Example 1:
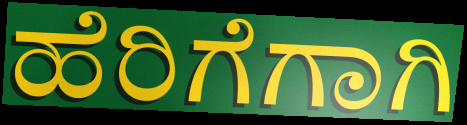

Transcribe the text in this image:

ಹೆರಿಗೆಗಾಗಿ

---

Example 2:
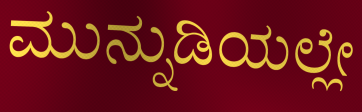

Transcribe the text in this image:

ಮುನ್ನುಡಿಯಲ್ಲೇ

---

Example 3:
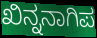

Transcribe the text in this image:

ಖಿನ್ನನಾಗಿಪ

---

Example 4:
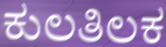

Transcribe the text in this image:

ಕುಲತಿಲಕ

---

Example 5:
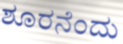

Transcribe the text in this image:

ಶೂರನೆಂದು